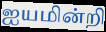
ஐயமின்றி